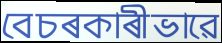
বেচৰকাৰীভাৱে